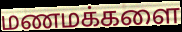
மணமக்களை